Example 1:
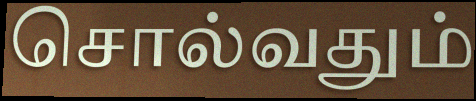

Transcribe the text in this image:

சொல்வதும்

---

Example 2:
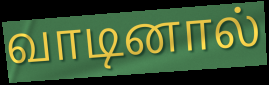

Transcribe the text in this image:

வாடினால்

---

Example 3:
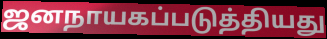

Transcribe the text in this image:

ஜனநாயகப்படுத்தியது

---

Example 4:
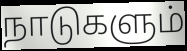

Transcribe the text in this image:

நாடுகளும்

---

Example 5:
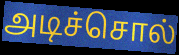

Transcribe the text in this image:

அடிச்சொல்